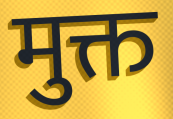
मुक्त